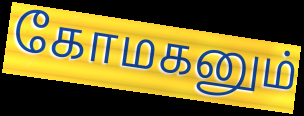
கோமகனும்